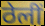
ठेलीं